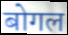
बोगल